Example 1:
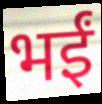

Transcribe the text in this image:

भईं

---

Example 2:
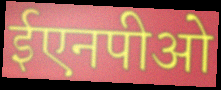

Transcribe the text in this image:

ईएनपीओ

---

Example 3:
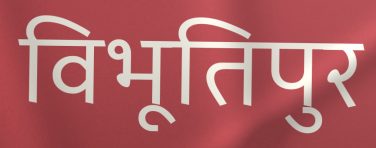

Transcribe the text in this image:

विभूतिपुर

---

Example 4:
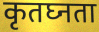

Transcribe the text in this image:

कृतघ्नता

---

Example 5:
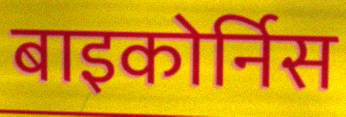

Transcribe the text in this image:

बाइकोर्निस